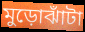
মুড়োঝাঁটা